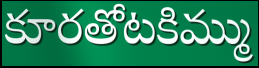
కూరతోటకిమ్ము